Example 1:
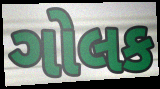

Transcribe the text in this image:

ગોલક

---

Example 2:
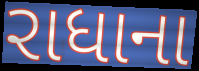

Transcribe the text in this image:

રાધાના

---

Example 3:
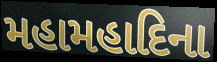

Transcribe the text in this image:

મહામહાદિના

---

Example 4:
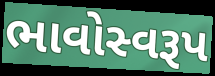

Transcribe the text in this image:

ભાવોસ્વરૂપ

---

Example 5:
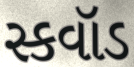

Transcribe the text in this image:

સ્કવૉડ